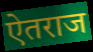
ऐतराज